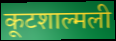
कूटशाल्मली